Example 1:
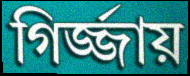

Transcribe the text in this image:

গির্জ্জায়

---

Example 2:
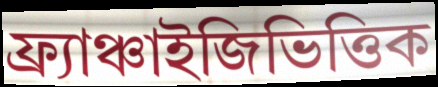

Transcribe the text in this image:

ফ্র্যাঞ্চাইজিভিত্তিক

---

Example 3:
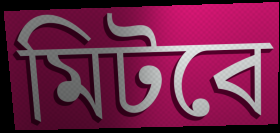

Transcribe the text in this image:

মিটবে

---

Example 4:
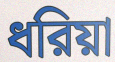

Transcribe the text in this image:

ধরিয়া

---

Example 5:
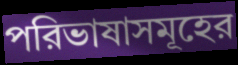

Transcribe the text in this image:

পরিভাষাসমূহের